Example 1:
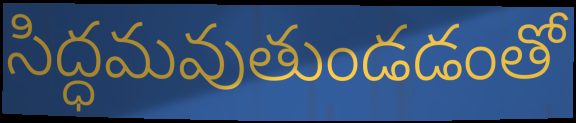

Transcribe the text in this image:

సిద్ధమవుతుండడంతో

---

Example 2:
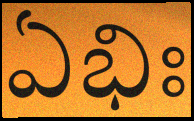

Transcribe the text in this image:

ఏభిః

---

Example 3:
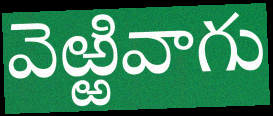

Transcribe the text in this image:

వెఱ్ఱివాగు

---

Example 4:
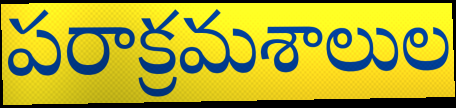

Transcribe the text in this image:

పరాక్రమశాలుల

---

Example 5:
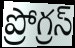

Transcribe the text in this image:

ప్రోగ్రస్